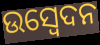
ଉସ୍ୱେଦନ